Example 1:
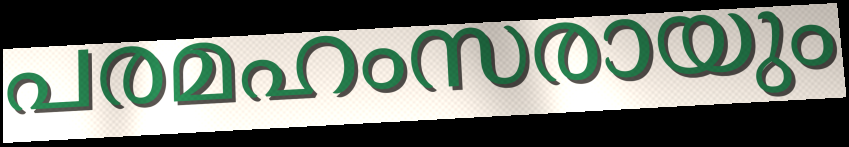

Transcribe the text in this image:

പരമഹംസരായും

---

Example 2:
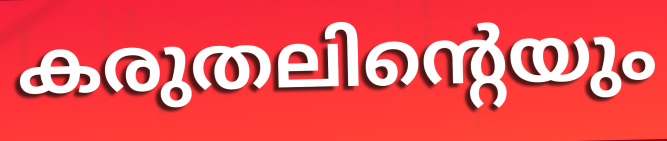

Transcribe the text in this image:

കരുതലിന്റെയും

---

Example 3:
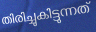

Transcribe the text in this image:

തിരിച്ചുകിട്ടുന്നത്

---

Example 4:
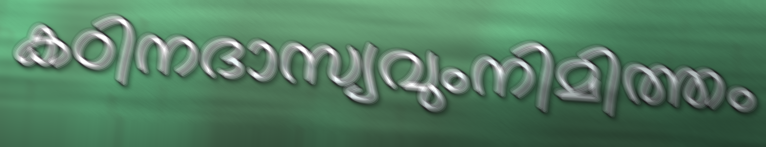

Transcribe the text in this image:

കഠിനദാസ്യവുംനിമിത്തം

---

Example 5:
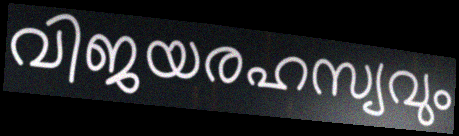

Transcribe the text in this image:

വിജയരഹസ്യവും